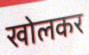
खोलकर